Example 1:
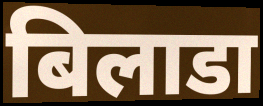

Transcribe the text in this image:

बिलाडा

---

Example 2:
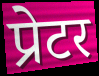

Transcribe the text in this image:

प्रेटर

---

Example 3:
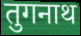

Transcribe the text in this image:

तुगनाथ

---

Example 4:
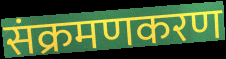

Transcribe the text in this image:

संक्रमणकरण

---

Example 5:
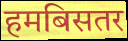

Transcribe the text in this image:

हमबिसतर